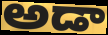
అడా